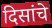
दिसांचे